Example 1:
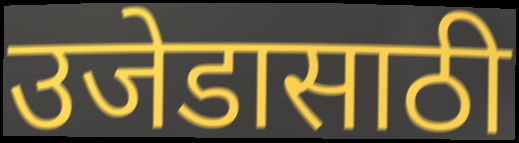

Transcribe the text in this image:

उजेडासाठी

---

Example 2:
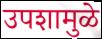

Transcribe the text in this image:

उपशामुळे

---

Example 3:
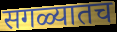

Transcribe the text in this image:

सगळ्यातच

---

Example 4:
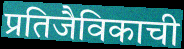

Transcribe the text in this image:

प्रतिजैविकाची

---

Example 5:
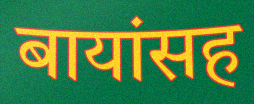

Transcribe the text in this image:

बायांसह